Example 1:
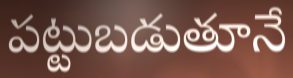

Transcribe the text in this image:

పట్టుబడుతూనే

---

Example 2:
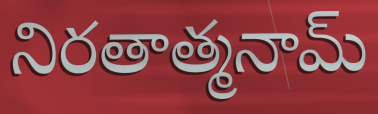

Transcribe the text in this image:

నిరతాత్మనామ్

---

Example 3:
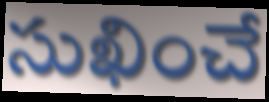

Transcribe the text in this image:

సుఖించే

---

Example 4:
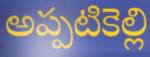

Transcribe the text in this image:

అప్పటికెల్లి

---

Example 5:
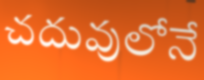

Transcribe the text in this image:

చదువులోనే